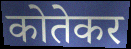
कोतेकर